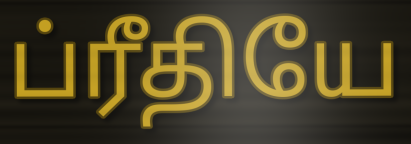
ப்ரீதியே